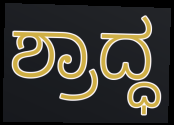
ಶ್ರಾದ್ಧ